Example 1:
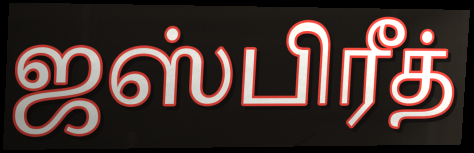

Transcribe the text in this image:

ஜஸ்பிரீத்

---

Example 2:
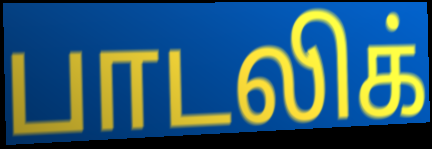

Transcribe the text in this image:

பாடலிக்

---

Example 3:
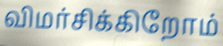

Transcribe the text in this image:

விமர்சிக்கிறோம்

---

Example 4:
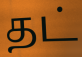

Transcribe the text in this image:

தட்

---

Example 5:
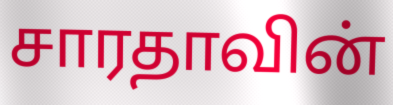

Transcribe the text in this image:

சாரதாவின்